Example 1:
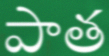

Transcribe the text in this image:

పాత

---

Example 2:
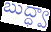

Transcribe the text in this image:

బుద్ధ్వా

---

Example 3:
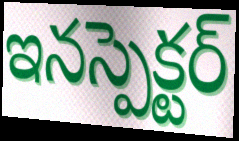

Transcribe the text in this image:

ఇనస్పెక్టర్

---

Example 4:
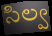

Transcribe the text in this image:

సిల్వ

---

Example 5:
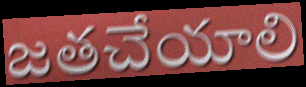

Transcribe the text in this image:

జతచేయాలి